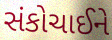
સંકોચાઈને